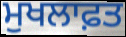
ਮੁਖਲਾਫ਼ਤ